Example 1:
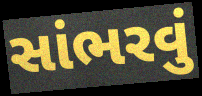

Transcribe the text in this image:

સાંભરવું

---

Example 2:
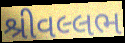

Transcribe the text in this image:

શ્રીવલ્લભ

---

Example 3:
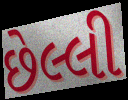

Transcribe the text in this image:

છેલ્લી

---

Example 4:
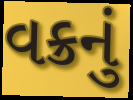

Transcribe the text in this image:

વક્રનું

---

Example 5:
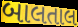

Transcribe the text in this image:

બાલતાલ